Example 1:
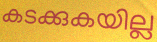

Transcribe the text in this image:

കടക്കുകയില്ല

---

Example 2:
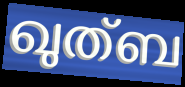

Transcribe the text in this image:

ഖുത്ബ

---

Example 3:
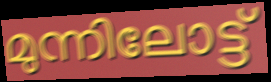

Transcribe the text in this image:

മുന്നിലോട്ട്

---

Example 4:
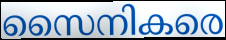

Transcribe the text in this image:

സൈനികരെ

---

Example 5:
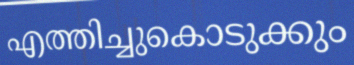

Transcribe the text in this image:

എത്തിച്ചുകൊടുക്കും